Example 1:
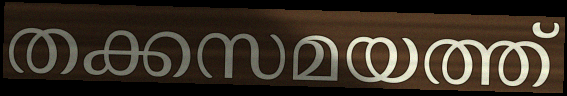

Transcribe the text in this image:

തക്കസമയത്ത്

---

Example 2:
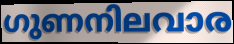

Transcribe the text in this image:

ഗുണനിലവാര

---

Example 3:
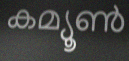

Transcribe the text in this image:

കമ്യൂൺ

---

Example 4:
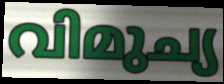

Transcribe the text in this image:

വിമുച്യ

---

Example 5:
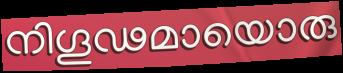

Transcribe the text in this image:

നിഗൂഢമായൊരു